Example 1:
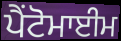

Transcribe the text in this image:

ਪੈਂਟੋਮਾਈਮ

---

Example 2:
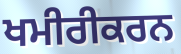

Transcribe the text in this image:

ਖਮੀਰੀਕਰਨ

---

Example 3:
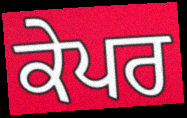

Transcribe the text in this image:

ਕੇਪਰ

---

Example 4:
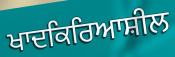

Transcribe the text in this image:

ਖਾਦਕਿਰਿਆਸ਼ੀਲ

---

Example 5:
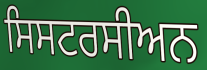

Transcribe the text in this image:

ਸਿਸਟਰਸੀਅਨ